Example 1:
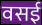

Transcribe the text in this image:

वसई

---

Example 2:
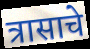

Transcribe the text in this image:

त्रासाचे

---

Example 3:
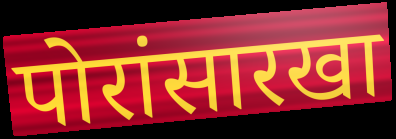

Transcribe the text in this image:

पोरांसारखा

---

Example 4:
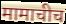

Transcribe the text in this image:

मामाचीच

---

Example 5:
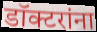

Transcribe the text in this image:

डॉक्टरांना